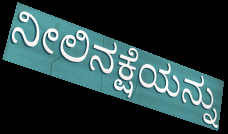
ನೀಲಿನಕ್ಷೆಯನ್ನು